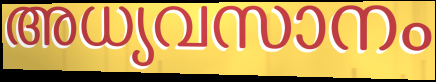
അധ്യവസാനം